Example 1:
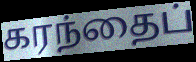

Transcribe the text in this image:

கரந்தைப்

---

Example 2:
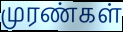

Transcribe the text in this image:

முரண்கள்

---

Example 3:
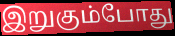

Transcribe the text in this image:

இறுகும்போது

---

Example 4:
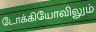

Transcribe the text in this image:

டோக்கியோவிலும்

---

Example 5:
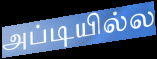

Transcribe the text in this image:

அப்டியில்ல